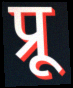
प्रू